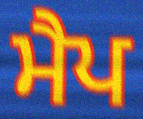
ਮੈਪ